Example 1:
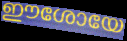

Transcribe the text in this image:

ഈശോയേ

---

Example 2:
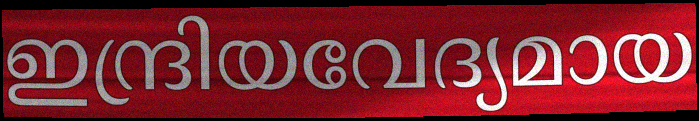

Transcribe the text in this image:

ഇന്ദ്രിയവേദ്യമായ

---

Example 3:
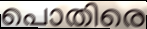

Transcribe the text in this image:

പൊതിരെ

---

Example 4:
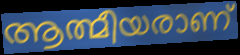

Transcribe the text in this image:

ആത്മീയരാണ്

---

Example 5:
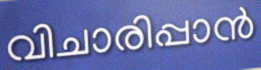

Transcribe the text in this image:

വിചാരിപ്പാൻ